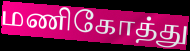
மணிகோத்து